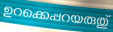
ഉറക്കെപ്പറയരുതു്